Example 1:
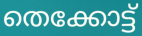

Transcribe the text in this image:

തെക്കോട്ട്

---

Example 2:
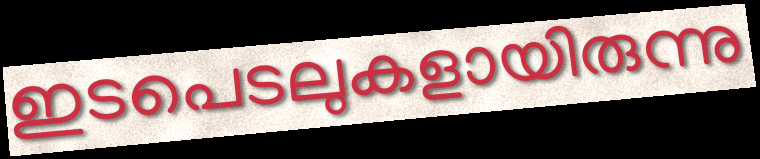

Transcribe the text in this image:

ഇടപെടലുകളായിരുന്നു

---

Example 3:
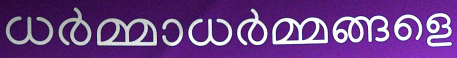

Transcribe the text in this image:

ധർമ്മാധർമ്മങ്ങളെ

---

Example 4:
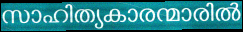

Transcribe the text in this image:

സാഹിത്യകാരന്മാരിൽ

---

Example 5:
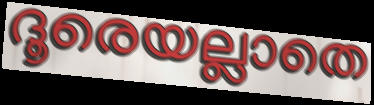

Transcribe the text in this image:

ദൂരെയല്ലാതെ